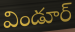
విండూర్